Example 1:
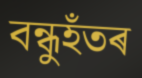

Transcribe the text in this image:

বন্ধুহঁতৰ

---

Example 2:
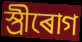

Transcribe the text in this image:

স্ত্ৰীৰোগ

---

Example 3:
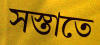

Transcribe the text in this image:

সস্তাতে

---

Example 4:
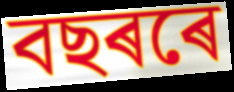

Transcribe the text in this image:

বছৰৰে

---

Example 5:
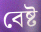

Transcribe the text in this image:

বেষ্ট